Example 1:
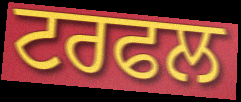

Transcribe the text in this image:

ਟਰਫਲ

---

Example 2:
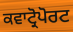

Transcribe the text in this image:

ਕਵਾਟ੍ਰੋਪੋਰਟ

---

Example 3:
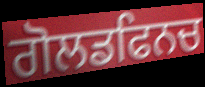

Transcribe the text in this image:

ਗੋਲਡਫਿਨਚ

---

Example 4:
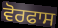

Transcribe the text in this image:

ਵੋਰਫਾਸ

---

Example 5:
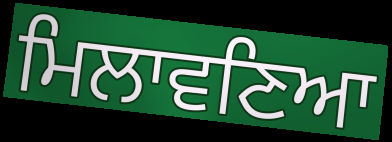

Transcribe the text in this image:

ਮਿਲਾਵਣਿਆ